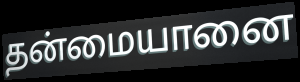
தன்மையானை